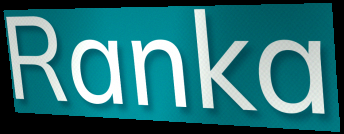
Ranka